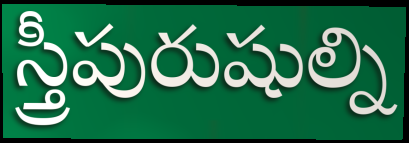
స్త్రీపురుషుల్ని